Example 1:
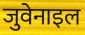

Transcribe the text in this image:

जुवेनाइल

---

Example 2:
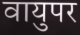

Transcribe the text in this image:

वायुपर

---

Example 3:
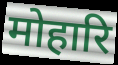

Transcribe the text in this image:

मोहारि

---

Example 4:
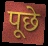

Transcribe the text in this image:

पूछे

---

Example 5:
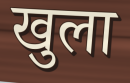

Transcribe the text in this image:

खुला